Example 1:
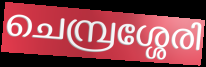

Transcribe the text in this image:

ചെമ്പ്രശ്ശേരി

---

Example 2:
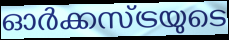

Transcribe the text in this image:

ഓർക്കസ്ട്രയുടെ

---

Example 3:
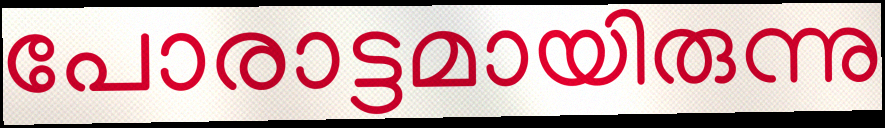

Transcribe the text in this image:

പോരാട്ടമായിരുന്നു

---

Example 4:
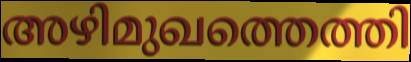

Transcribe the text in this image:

അഴിമുഖത്തെത്തി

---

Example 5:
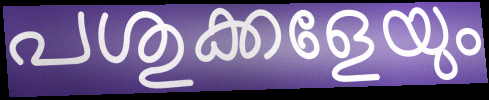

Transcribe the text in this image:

പശുക്കളേയും